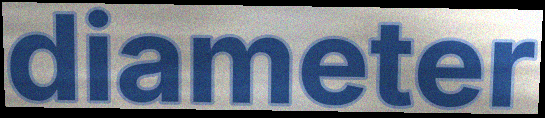
diameter